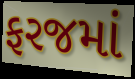
ફરજમાં